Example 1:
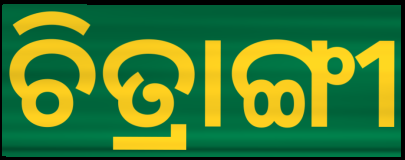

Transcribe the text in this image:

ଚିତ୍ରାଙ୍ଗୀ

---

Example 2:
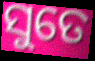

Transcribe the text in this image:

ସୁତେ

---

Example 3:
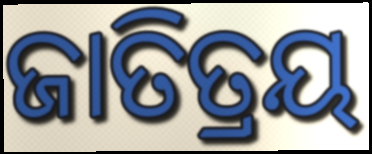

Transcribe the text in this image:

ଜାତିତ୍ରୟ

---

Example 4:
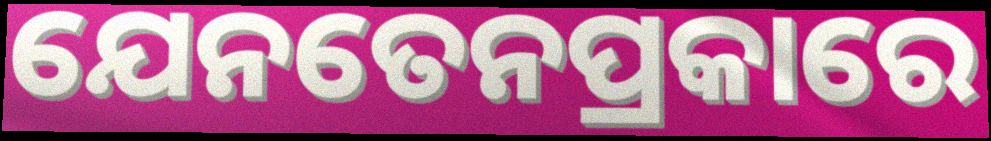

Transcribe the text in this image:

ଯେନତେନପ୍ରକାରେ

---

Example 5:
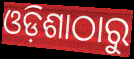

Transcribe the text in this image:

ଓଡ଼ିଶାଠାରୁ